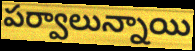
పర్వాలున్నాయి